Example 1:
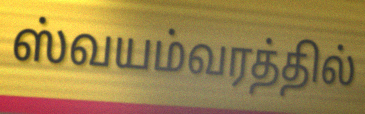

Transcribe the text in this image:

ஸ்வயம்வரத்தில்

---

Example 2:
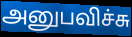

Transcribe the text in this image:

அனுபவிச்சு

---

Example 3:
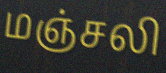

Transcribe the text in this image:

மஞ்சலி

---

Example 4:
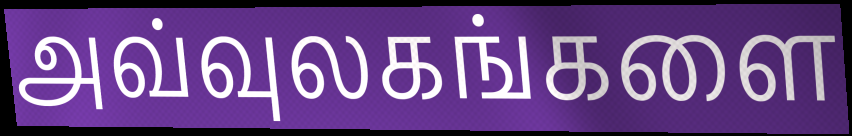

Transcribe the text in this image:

அவ்வுலகங்களை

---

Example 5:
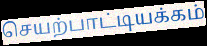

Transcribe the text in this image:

செயற்பாட்டியக்கம்